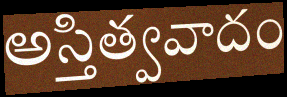
అస్తిత్వవాదం